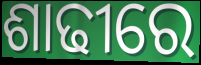
ଶାଢୀରେ